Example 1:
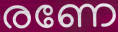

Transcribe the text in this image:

രണേ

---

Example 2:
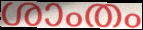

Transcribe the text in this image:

ശാംതം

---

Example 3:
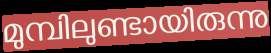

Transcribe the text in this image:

മുമ്പിലുണ്ടായിരുന്നു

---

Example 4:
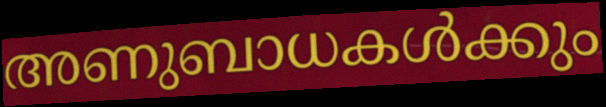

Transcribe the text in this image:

അണുബാധകൾക്കും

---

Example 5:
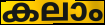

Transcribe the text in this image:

കലാം